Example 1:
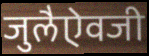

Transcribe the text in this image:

जुलैऐवजी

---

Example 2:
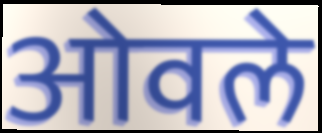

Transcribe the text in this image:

ओवले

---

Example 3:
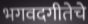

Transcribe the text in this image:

भगवदगीतेचे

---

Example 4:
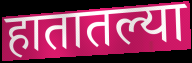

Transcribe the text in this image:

हातातल्या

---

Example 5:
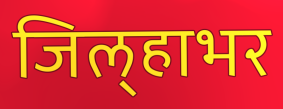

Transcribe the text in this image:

जिल्हाभर